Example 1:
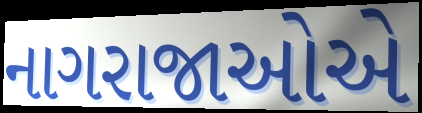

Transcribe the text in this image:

નાગરાજાઓએ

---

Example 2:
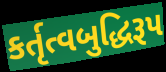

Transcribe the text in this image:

કર્તૃત્વબુદ્ધિરૂપ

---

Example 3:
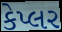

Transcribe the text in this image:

કેપ્લર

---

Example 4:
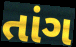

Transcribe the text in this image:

તાંગ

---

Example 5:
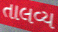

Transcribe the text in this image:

તાલવ્ય